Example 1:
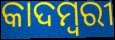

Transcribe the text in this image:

କାଦମ୍ବରୀ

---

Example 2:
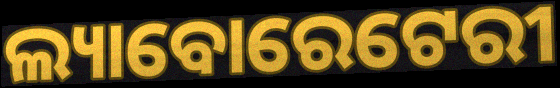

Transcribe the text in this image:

ଲ୍ୟାବୋରେଟେରୀ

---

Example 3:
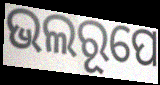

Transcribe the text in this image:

ଭଲରୂପେ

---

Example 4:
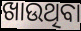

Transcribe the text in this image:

ଖାଉଥିବା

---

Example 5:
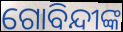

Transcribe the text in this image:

ଗୋବିନ୍ଦୀଙ୍କ